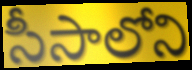
సీసాలోని